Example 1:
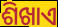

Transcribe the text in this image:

ଶିଖାଏ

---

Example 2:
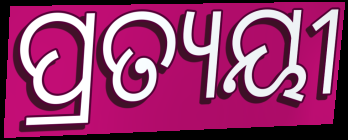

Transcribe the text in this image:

ପ୍ରତ୍ୟୟୀ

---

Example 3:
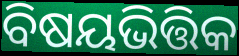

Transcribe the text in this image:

ବିଷୟଭିତ୍ତିକ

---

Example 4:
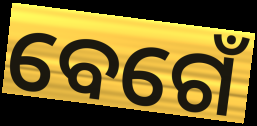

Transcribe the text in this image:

ବେଗେଁ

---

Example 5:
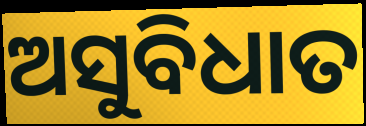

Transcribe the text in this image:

ଅସୁବିଧାତ